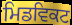
ਮਿਡਵਿਕਟ